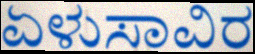
ಏಳುಸಾವಿರ